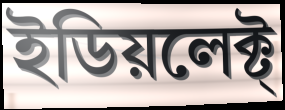
ইডিয়লেক্ট্